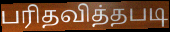
பரிதவித்தபடி